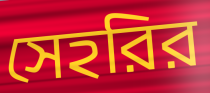
সেহরির